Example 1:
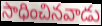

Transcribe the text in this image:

సాధించినవాడు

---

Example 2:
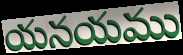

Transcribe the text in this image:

యనయము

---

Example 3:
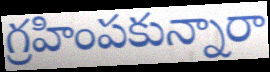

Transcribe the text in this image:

గ్రహింపకున్నారా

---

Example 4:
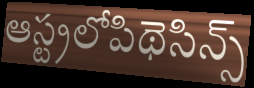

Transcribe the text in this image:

ఆస్ట్రలోపిథెసిన్స్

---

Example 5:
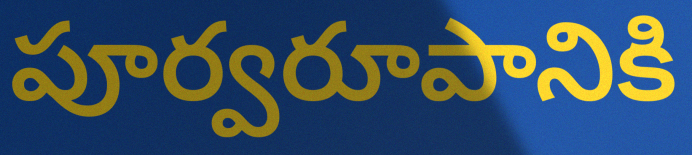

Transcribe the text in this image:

పూర్వరూపానికి